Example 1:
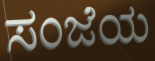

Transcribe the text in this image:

ಸಂಜೆಯ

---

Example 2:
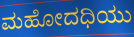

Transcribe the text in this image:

ಮಹೋದಧಿಯು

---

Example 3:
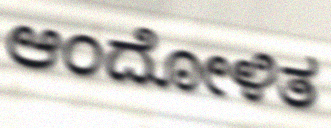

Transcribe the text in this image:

ಆಂದೋಳಿತ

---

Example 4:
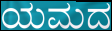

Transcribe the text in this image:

ಯಮದ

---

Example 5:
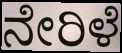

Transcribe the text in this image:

ನೇರಿಳೆ